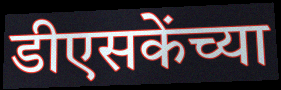
डीएसकेंच्या